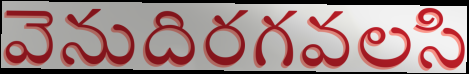
వెనుదిరగవలసి